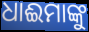
ଧାଈମାଙ୍କୁ